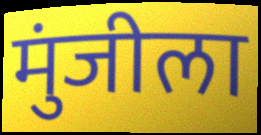
मुंजीला